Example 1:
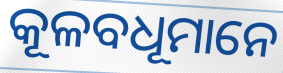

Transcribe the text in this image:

କୂଳବଧୂମାନେ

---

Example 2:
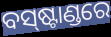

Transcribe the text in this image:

ବସ୍‍ଷ୍ଟାଣ୍ଡରେ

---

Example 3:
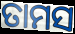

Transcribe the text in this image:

ତାମସ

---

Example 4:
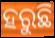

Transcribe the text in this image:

ହରୁଛି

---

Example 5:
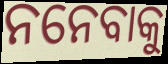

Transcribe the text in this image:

ନନେବାକୁ